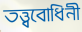
তত্ত্ববোধিনী